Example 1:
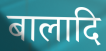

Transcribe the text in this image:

बालादि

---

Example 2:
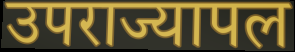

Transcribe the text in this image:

उपराज्यापल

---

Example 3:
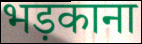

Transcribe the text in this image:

भड़काना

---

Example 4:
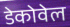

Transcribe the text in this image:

डेकोवेल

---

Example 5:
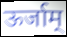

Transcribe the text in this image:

ऊर्जाम्